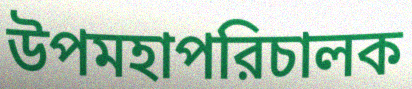
উপমহাপরিচালক